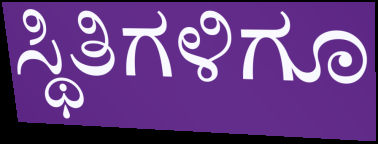
ಸ್ಥಿತಿಗಳಿಗೂ